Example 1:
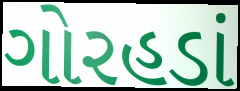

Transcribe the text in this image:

ગોરહડાં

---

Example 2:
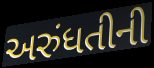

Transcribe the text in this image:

અરુંધતીની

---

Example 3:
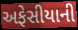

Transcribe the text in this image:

અફેસીયાની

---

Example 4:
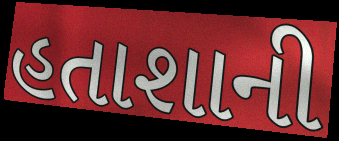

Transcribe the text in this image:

હતાશાની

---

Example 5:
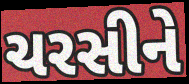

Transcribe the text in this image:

ચરસીને